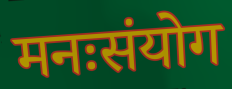
मनःसंयोग